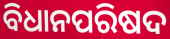
ବିଧାନପରିଷଦ